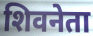
शिवनेता